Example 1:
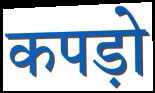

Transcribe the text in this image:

कपड़ो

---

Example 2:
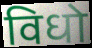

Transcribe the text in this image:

विधो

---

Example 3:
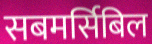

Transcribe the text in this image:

सबमर्सिबिल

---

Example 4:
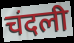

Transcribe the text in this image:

चंदली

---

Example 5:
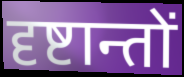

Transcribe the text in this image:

दृष्टान्तों